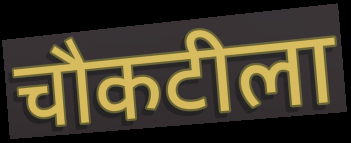
चौकटीला